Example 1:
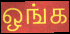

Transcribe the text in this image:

ஒங்க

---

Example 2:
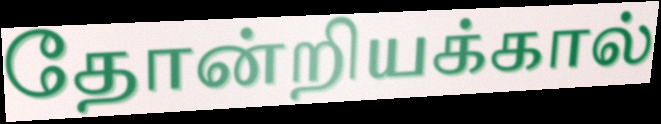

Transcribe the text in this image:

தோன்றியக்கால்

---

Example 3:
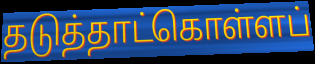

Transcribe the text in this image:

தடுத்தாட்கொள்ளப்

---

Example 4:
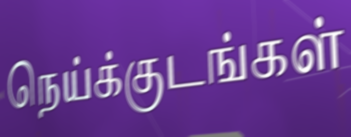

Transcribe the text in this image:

நெய்க்குடங்கள்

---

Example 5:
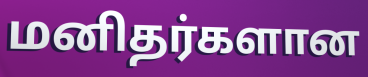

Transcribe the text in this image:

மனிதர்களான